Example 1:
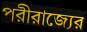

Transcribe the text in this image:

পরীরাজ্যের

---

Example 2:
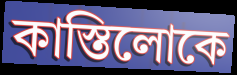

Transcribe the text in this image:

কাস্তিলোকে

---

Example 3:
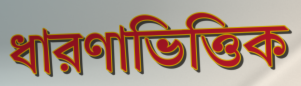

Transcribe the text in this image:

ধারণাভিত্তিক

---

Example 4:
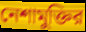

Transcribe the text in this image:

নেশামুক্তির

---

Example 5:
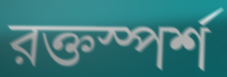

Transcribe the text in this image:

রক্তস্পর্শ